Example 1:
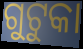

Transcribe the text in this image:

ଗୁଟୁକା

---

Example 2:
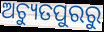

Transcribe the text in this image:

ଅଚ୍ୟୁତପୁରରୁ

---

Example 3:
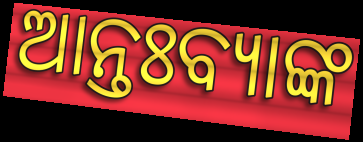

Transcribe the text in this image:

ଆନ୍ତଃବ୍ୟାଙ୍କ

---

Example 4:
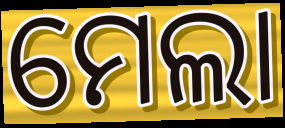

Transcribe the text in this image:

ମେଲା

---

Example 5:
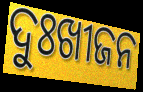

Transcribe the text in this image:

ଦୁଃଖୀଜନ